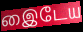
இைடேய